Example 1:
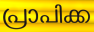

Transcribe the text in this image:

പ്രാപിക്ക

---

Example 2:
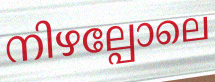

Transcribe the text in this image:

നിഴല്പോലെ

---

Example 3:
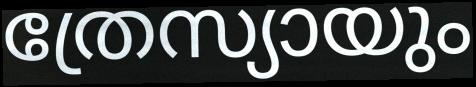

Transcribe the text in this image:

ത്രേസ്യായും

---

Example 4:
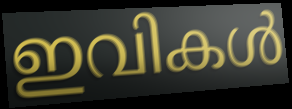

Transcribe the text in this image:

ഇവികൾ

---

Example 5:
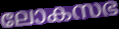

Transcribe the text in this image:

ലോകസഭ